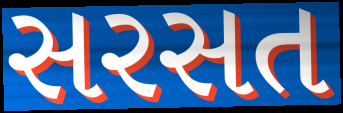
સરસત